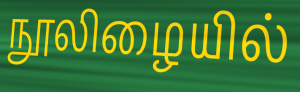
நூலிழையில்